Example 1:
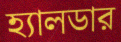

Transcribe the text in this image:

হ্যালডার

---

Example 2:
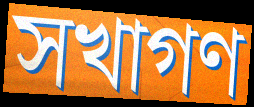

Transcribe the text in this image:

সখাগণ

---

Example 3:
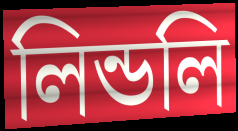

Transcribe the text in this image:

লিন্ডলি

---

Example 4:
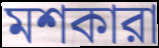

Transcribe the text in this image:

মশকারা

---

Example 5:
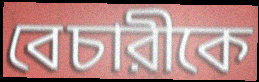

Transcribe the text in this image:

বেচারীকে